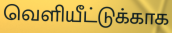
வெளியீட்டுக்காக